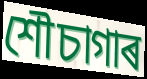
শৌচাগাৰ